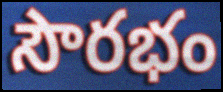
సౌరభం